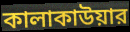
কালাকাউয়ার